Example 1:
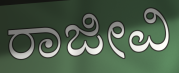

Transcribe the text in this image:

ರಾಜೀವಿ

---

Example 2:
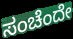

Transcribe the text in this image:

ಸಂಚೆಂದೇ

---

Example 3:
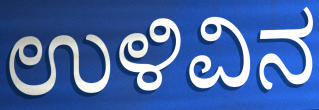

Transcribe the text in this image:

ಉಳಿವಿನ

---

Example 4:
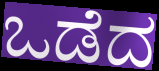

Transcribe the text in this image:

ಒಡೆದ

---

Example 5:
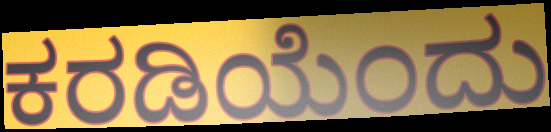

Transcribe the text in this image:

ಕರಡಿಯೆಂದು